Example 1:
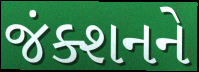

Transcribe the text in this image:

જંક્શનને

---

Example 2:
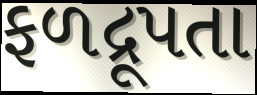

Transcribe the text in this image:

ફળદ્રૂપતા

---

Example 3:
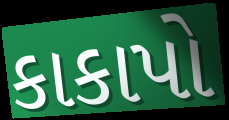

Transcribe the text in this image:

કાકાપો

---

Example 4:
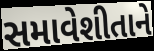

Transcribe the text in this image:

સમાવેશીતાને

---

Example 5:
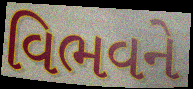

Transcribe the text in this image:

વિભવને